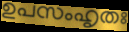
ഉപസംഹൃതഃ